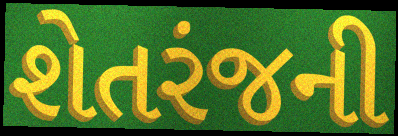
શેતરંજની